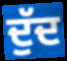
ਦੁੱਦ